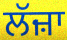
ਲੱਜ਼ਾ